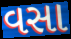
વસા